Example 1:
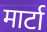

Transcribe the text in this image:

मार्टा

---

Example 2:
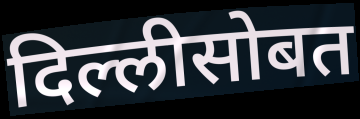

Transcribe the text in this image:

दिल्लीसोबत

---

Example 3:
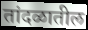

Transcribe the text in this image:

तांदळातील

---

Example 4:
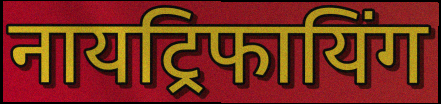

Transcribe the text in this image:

नायट्रिफायिंग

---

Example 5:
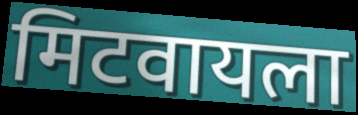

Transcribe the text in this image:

मिटवायला